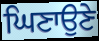
ਘਿਣਾਉਣੇ